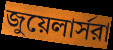
জুয়েলার্সরা